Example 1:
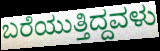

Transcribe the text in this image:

ಬರೆಯುತ್ತಿದ್ದವಳು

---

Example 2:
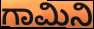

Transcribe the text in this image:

ಗಾಮಿನಿ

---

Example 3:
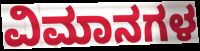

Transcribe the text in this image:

ವಿಮಾನಗಳ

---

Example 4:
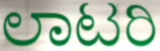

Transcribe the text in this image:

ಲಾಟರಿ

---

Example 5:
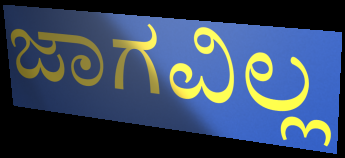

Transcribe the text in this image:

ಜಾಗವಿಲ್ಲ